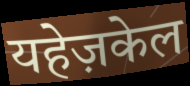
यहेज़केल